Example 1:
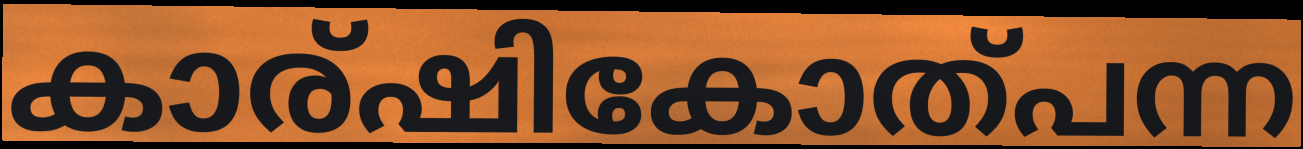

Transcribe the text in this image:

കാര്ഷികോത്പന്ന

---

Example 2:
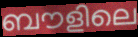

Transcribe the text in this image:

ബൗളിലെ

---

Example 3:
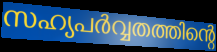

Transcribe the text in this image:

സഹ്യപർവ്വതത്തിന്റെ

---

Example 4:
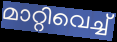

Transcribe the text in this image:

മാറ്റിവെച്ച്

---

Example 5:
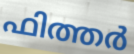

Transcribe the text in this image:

ഫിത്തർ